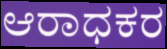
ಆರಾಧಕರ